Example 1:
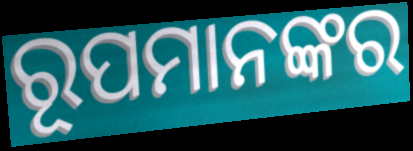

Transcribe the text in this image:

ରୂପମାନଙ୍କର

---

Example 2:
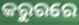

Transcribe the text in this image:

କରୁରରେ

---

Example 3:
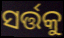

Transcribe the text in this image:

ସର୍ତ୍ତକୁ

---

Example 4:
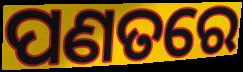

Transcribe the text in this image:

ପଣତରେ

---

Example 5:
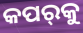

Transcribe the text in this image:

କପର୍‌କୁ